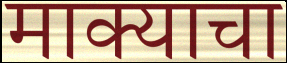
माक्याचा